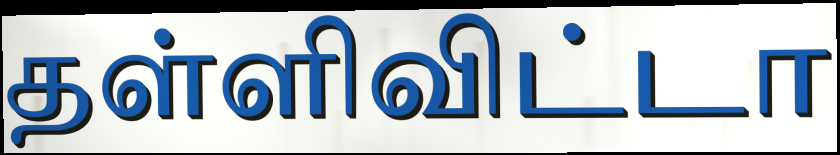
தள்ளிவிட்டா